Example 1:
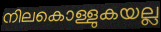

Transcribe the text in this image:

നിലകൊള്ളുകയല്ല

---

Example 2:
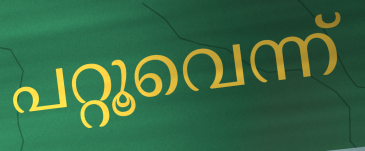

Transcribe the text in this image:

പറ്റൂവെന്ന്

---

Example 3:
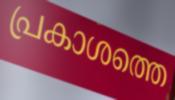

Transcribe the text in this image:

പ്രകാശത്തെ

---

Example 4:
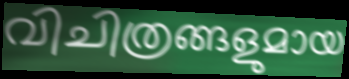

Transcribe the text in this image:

വിചിത്രങ്ങളുമായ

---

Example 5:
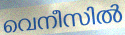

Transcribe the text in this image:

വെനീസിൽ